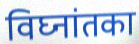
विघ्नांतका